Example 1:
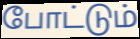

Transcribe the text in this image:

போட்டும்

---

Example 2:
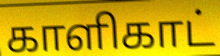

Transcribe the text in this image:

காளிகாட்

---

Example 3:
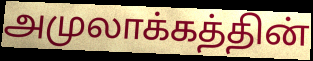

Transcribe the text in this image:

அமுலாக்கத்தின்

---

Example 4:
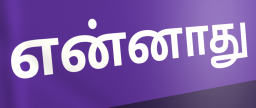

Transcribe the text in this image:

என்னாது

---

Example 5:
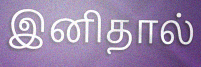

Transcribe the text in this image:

இனிதால்